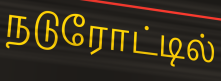
நடுரோட்டில்